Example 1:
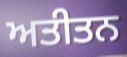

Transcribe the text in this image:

ਅਤੀਤਨ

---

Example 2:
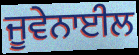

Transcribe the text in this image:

ਜੂਵੇਨਾਈਲ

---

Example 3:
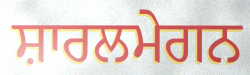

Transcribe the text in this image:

ਸ਼ਾਰਲਮੇਗਨ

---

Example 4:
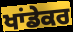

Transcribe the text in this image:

ਖਾਂਡੇਕਰ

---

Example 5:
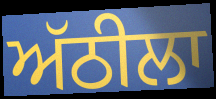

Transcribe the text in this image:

ਅੱਠੀਲਾ